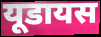
यूडायस